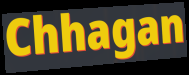
Chhagan